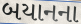
બયાનના